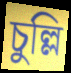
চুল্লি